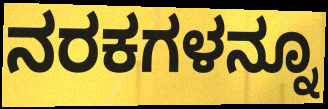
ನರಕಗಳನ್ನೂ